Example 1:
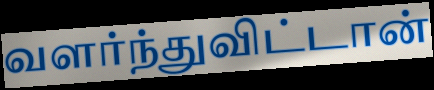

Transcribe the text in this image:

வளர்ந்துவிட்டான்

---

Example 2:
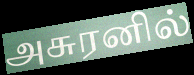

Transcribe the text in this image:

அசுரனில்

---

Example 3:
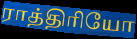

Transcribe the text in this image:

ராத்திரியோ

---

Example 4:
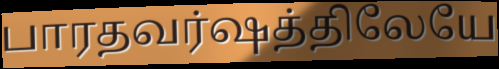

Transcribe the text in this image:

பாரதவர்ஷத்திலேயே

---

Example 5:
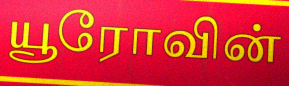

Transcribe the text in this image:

யூரோவின்